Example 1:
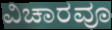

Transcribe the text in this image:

ವಿಚಾರವೂ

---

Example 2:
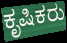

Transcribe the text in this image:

ಕೃಷಿಕರು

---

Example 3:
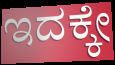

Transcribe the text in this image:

ಇದಕ್ಕೇ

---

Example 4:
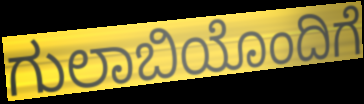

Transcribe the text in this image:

ಗುಲಾಬಿಯೊಂದಿಗೆ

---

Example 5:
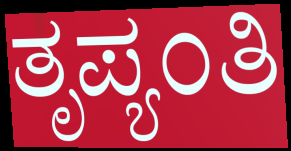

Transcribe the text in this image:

ತೃಪ್ಯಂತಿ